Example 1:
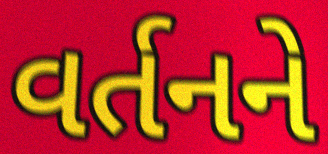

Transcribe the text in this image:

વર્તનને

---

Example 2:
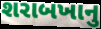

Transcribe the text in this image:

શરાબખાનુ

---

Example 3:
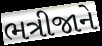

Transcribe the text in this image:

ભત્રીજાને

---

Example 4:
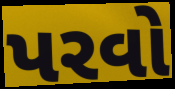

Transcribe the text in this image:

પરવો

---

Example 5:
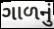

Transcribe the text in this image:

ગાળનું